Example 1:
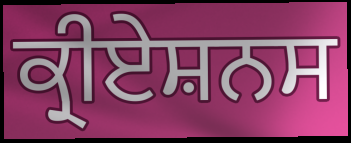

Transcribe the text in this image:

ਕ੍ਰੀਏਸ਼ਨਸ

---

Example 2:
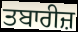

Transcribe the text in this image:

ਤਬਾਰੀਜ਼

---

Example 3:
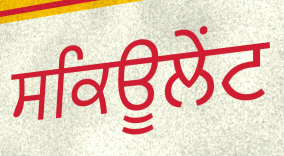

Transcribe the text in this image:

ਸਕਿਊਲੇਂਟ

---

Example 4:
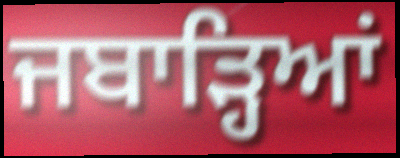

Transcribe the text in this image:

ਜਬਾੜ੍ਹਿਆਂ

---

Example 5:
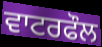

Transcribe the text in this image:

ਵਾਟਰਫੌਲ